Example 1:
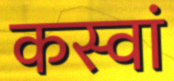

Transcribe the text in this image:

कस्‍वां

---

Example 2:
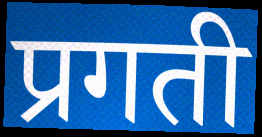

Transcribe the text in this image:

प्रगती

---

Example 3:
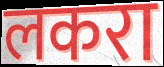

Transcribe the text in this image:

लकरा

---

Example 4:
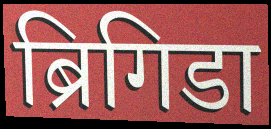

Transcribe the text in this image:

ब्रिगिडा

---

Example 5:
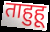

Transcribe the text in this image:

ताहुहू